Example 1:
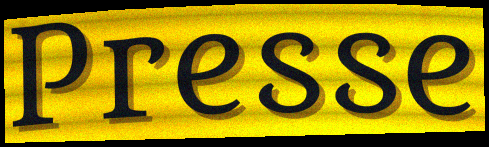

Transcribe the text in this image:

Presse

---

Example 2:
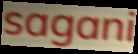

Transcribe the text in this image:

sagani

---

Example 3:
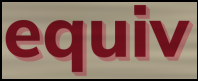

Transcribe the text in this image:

equiv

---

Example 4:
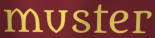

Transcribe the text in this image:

muster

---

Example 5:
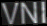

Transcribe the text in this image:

VNI